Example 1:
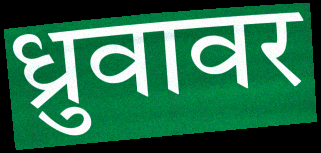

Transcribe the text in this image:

ध्रुवावर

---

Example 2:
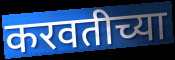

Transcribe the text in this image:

करवतीच्या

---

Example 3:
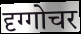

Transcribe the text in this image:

दृग्गोचर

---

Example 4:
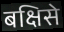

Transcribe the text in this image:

बक्षिसे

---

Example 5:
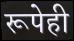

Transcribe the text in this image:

रूपेही